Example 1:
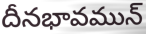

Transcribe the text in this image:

దీనభావమున్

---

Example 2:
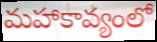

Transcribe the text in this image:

మహాకావ్యంలో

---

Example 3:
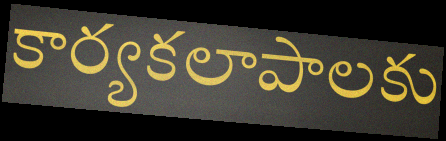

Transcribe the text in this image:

కార్యకలాపాలకు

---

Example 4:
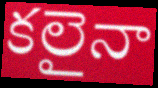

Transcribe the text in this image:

కలైనా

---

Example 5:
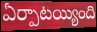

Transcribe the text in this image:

ఏర్పాటయ్యింది